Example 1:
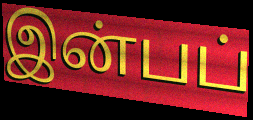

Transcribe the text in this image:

இன்பப்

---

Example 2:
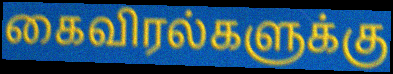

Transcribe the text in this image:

கைவிரல்களுக்கு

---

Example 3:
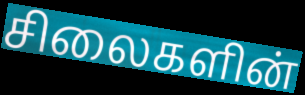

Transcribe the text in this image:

சிலைகளின்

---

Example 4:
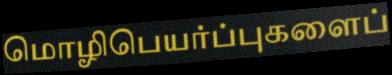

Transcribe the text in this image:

மொழிபெயர்ப்புகளைப்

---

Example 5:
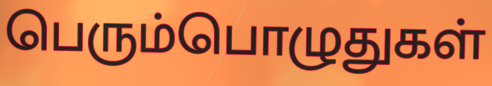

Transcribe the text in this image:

பெரும்பொழுதுகள்